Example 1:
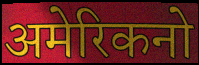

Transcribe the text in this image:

अमेरिकनो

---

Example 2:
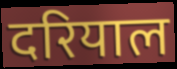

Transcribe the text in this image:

दरियाल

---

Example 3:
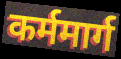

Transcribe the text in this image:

कर्ममार्ग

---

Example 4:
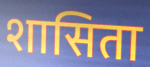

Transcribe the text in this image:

शासिता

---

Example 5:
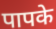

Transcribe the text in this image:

पापके